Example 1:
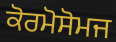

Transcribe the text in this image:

ਕੋਰਮੋਸੋਮਜ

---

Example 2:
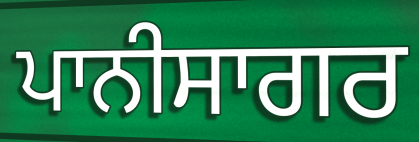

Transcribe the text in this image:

ਪਾਨੀਸਾਗਰ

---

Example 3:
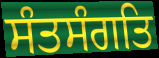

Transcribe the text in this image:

ਸੰਤਸੰਗਤਿ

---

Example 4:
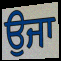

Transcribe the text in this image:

ਉਜਾ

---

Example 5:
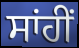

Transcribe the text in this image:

ਸਾਂਹੀਂ